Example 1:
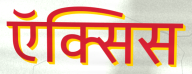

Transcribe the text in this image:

ऍक्सिस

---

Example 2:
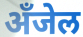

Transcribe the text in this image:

अँजेल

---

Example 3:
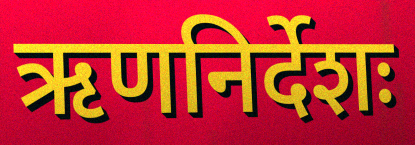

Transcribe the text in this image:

ऋणनिर्देशः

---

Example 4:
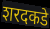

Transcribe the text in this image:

शरदकडे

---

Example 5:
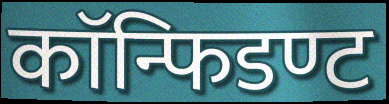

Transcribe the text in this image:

कॉन्फिडण्ट